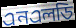
এনএলডি